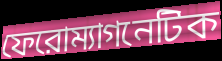
ফেরোম্যাগনেটিক